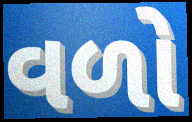
વળો